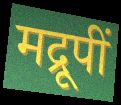
मद्रूपीं